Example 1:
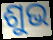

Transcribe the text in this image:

ଶୁଭ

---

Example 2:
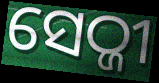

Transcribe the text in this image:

ସେଠ୍ଜୀ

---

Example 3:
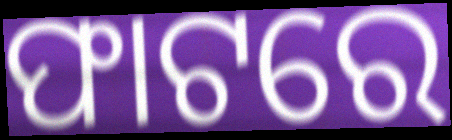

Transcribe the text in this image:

ଫାଟରେ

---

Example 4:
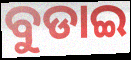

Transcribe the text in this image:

ବୁଡାଇ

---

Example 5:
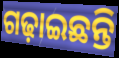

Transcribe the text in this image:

ଗଢ଼ାଇଛନ୍ତି